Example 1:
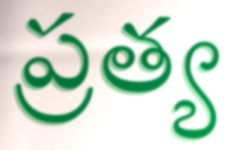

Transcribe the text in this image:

ప్రత్య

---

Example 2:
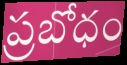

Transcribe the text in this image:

ప్రబోధం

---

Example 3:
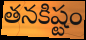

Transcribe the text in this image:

తనకిష్టం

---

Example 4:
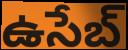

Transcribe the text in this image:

ఉసేబ్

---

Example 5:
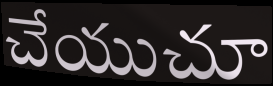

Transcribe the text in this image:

చేయుచూ